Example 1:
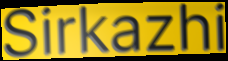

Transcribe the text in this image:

Sirkazhi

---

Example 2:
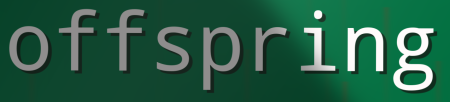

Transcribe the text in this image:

offspring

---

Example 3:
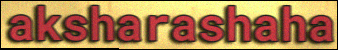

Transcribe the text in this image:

aksharashaha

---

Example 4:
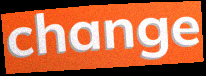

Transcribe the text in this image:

change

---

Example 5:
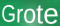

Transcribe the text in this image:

Grote